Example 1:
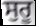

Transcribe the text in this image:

ਸੁਰੂ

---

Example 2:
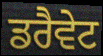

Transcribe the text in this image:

ਡਰੈਵੇਟ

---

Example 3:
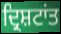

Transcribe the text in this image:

ਦ੍ਰਿਸ਼ਟਾਂਤ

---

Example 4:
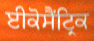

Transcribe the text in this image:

ਈਕੋਸੈਂਟ੍ਰਿਕ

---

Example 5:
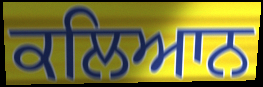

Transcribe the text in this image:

ਕਲਿਆਨ